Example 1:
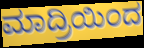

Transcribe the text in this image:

ಮಾದ್ರಿಯಿಂದ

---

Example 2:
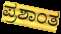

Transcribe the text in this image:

ಪ್ರಶಾಂತ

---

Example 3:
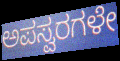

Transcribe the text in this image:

ಅಪಸ್ವರಗಳೇ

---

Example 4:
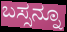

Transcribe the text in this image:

ಬಸ್ಸನ್ನೂ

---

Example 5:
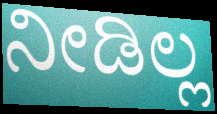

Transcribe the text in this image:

ನೀಡಿಲ್ಲ